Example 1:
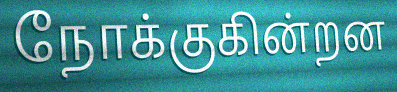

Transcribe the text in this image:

நோக்குகின்றன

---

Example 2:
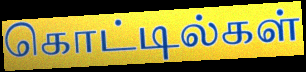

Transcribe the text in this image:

கொட்டில்கள்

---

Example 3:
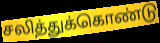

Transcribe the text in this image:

சலித்துக்கொண்டு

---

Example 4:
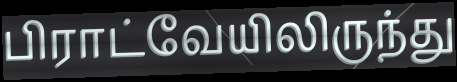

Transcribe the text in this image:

பிராட்வேயிலிருந்து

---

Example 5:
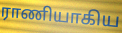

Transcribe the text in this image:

ராணியாகிய